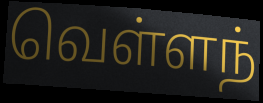
வெள்ளந்